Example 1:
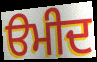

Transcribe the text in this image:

ੳਮੀਦ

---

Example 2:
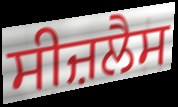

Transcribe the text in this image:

ਸੀਜ਼ਲੈਸ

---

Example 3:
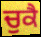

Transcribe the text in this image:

ਚੁਕੈ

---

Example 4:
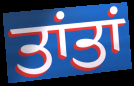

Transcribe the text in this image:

ਤਾਂਤਾਂ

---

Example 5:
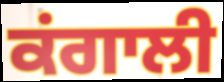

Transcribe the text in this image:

ਕਂਗਾਲੀ